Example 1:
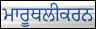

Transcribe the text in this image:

ਮਾਰੂਥਲੀਕਰਨ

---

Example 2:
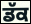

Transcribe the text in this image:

ਡੱਕ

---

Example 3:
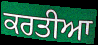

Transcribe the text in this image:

ਕਰਤੀਆ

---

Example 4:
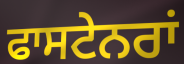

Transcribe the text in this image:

ਫਾਸਟੇਨਰਾਂ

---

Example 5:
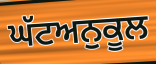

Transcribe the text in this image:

ਘੱਟਅਨੁਕੂਲ